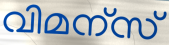
വിമന്സ്